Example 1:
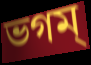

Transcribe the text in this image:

ভগম্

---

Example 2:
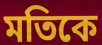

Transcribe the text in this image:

মতিকে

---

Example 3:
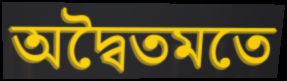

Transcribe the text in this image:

অদ্বৈতমতে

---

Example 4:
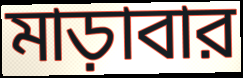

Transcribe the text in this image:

মাড়াবার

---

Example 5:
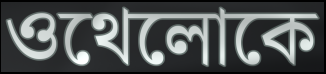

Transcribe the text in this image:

ওথেলোকে